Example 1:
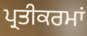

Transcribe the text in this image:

ਪ੍ਰਤੀਕਰਮਾਂ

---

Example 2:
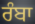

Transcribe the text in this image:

ਰੰਬਾ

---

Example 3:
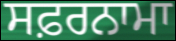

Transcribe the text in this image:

ਸਫ਼ਰਨਾਮਾ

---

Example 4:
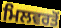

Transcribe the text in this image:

ਮਿਲਵਰਤੋਂ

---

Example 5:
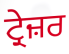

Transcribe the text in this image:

ਟ੍ਰੇਜ਼ਰ